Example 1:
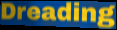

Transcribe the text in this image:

Dreading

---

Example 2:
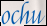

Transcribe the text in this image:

ochu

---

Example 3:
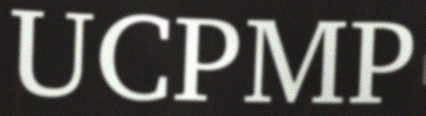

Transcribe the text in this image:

UCPMP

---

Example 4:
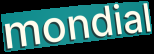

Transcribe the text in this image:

mondial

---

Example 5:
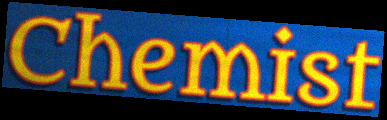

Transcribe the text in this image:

Chemist